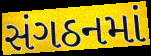
સંગઠનમાં